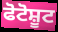
ਫੋਟੋਸ਼ੂਟ